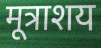
मूत्राशय